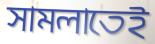
সামলাতেই